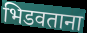
भिडवताना